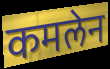
कमलेन